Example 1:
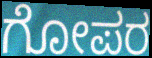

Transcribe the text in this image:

ಗೋಪರ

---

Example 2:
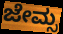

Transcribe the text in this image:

ಜೇಮ್ಸ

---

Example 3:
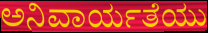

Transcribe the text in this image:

ಅನಿವಾರ್ಯತೆಯು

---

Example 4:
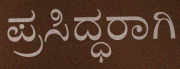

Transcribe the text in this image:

ಪ್ರಸಿದ್ಧರಾಗಿ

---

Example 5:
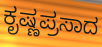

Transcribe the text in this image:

ಕೃಷ್ಣಪ್ರಸಾದ